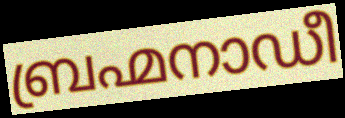
ബ്രഹ്മനാഡീ